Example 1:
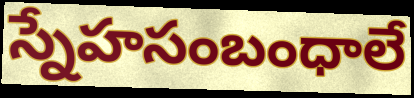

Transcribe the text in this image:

స్నేహసంబంధాలే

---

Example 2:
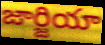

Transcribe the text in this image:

జార్జియా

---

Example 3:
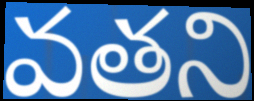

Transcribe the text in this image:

వతని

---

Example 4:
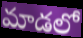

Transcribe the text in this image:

మాడలో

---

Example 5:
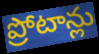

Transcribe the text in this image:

ప్రోటాన్లు